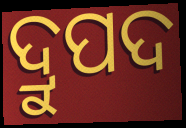
ଦ୍ରୁପଦ